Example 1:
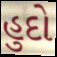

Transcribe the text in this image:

હુદો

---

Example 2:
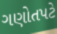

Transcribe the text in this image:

ગણોતપટે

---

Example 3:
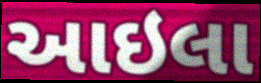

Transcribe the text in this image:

આઇલા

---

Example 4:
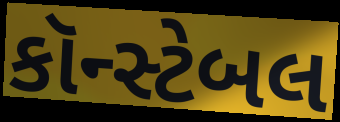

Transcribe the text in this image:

કૉન્સ્ટેબલ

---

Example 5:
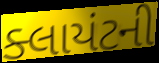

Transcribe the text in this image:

ક્લાયંટની